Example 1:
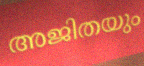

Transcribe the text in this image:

അജിതയും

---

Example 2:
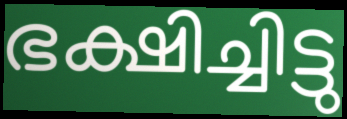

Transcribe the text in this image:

ഭക്ഷിച്ചിട്ടു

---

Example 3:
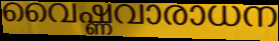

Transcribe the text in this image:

വൈഷ്ണവാരാധന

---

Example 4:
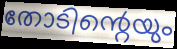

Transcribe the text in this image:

തോടിന്റെയും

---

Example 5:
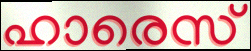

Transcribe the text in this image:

ഹാരെസ്